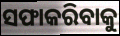
ସଫାକରିବାକୁ